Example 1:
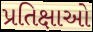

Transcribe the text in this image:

પ્રતિક્ષાઓ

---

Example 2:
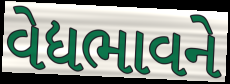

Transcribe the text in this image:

વેદ્યભાવને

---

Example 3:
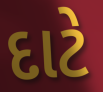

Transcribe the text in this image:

દાટે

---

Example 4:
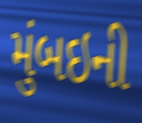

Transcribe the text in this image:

મુંબઇની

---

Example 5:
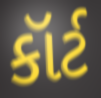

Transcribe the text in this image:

કૉર્ટ